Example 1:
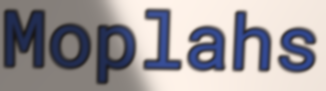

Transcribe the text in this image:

Moplahs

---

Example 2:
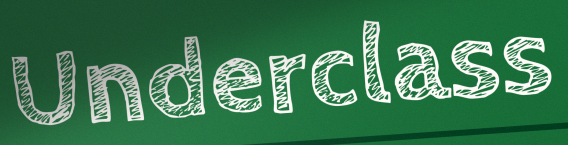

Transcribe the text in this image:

Underclass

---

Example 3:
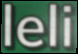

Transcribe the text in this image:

leli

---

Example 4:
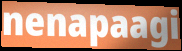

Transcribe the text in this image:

nenapaagi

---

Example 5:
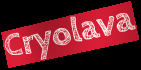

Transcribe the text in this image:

Cryolava